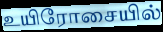
உயிரோசையில்